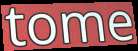
tome